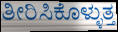
ತೀರಿಸಿಕೊಳ್ಳುತ್ತ